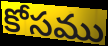
కోసము